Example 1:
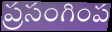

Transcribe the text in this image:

ప్రసంగింప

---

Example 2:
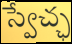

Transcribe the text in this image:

స్వేచ్ఛ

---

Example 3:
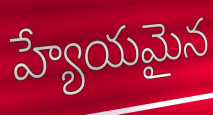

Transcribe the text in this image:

హ్యేయమైన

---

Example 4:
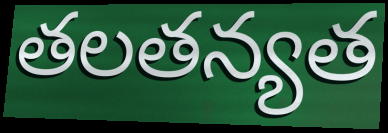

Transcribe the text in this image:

తలతన్యత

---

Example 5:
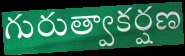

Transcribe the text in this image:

గురుత్వాకర్షణ